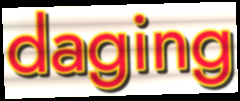
daging